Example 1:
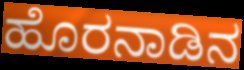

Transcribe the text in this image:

ಹೊರನಾಡಿನ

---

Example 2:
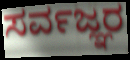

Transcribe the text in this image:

ಸರ್ವಜ್ಞರ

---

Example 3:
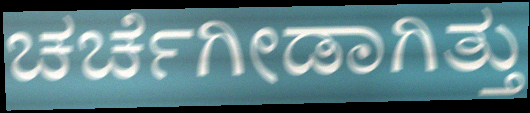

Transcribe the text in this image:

ಚರ್ಚೆಗೀಡಾಗಿತ್ತು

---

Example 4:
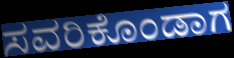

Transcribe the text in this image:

ಸವರಿಕೊಂಡಾಗ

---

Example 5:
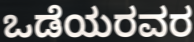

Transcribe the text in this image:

ಒಡೆಯರವರ